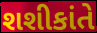
શશીકાંતે